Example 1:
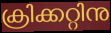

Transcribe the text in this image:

ക്രിക്കറ്റിനു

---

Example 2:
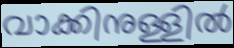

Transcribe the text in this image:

വാക്കിനുള്ളിൽ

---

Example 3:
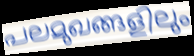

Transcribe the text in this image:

പലമുഖങ്ങളിലും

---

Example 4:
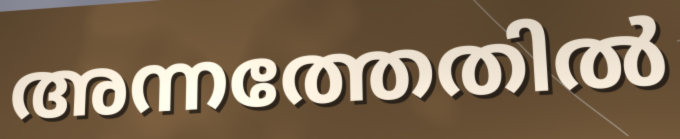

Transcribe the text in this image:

അന്നത്തേതിൽ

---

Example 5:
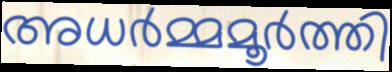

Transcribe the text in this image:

അധർമ്മമൂർത്തി